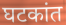
घटकांत